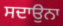
ਸਦਾਉਨਾ